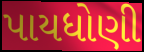
પાયધોણી